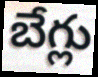
బేగ్లు